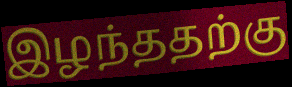
இழந்ததற்கு